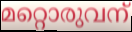
മറ്റൊരുവന്